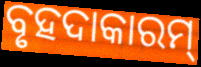
ବୃହଦାକାରମ୍